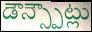
డౌన్స్పౌట్లు